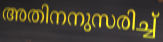
അതിനനുസരിച്ച്